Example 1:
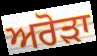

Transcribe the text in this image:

ਅਰੋੜਾ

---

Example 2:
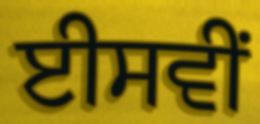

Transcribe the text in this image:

ਈਸਵੀਂ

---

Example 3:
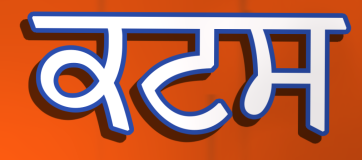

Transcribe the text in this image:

ਕਟਸ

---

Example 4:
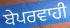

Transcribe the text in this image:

ਬੇਪਰਵਾਹੀ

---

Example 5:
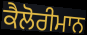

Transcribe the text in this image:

ਕੈਲੋਰੀਮਾਨ